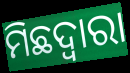
ମିଛଦ୍ଵାରା